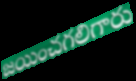
జయించగలిగారు